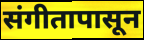
संगीतापासून